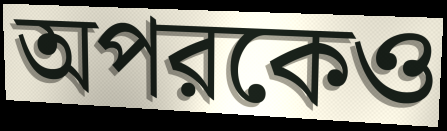
অপরকেও